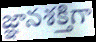
జ్ఞానశక్తిగా